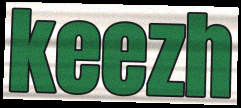
keezh